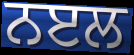
ਨੲਲ